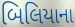
બિલિયાના